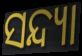
ସନ୍ଦ୍ୟା